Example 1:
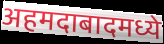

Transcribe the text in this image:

अहमदाबादमध्ये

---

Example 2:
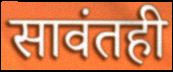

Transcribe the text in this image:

सावंतही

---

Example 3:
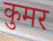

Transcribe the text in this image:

कुमर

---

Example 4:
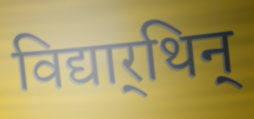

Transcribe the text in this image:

विद्यार्थिन्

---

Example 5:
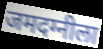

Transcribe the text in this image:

जमदग्नीला